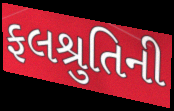
ફલશ્રુતિની